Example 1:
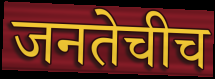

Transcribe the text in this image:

जनतेचीच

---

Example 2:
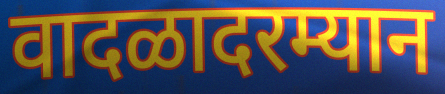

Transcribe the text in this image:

वादळादरम्यान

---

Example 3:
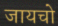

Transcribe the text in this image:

जायचो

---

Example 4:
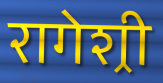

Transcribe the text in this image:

रागेश्री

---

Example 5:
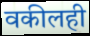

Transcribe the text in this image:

वकीलही